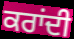
ਕਰਾਂਦੀ